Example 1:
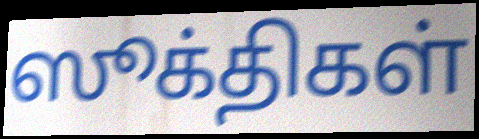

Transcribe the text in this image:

ஸூக்திகள்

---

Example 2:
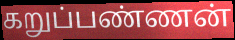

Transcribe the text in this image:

கறுப்பண்ணன்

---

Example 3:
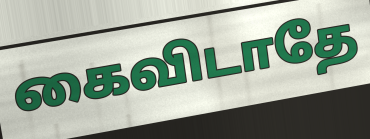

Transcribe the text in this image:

கைவிடாதே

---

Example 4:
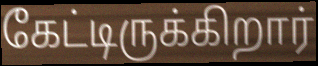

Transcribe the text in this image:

கேட்டிருக்கிறார்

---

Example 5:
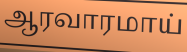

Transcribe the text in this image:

ஆரவாரமாய்